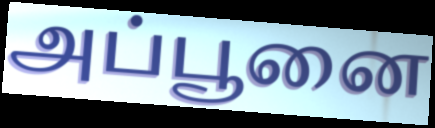
அப்பூனை